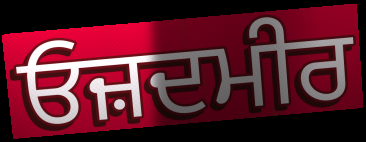
ਓਜ਼ਦਮੀਰ